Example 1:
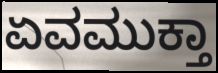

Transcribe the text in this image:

ಏವಮುಕ್ತಾ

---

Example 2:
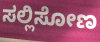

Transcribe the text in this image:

ಸಲ್ಲಿಸೋಣ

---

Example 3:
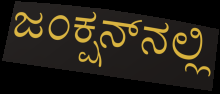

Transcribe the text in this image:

ಜಂಕ್ಷನ್‌ನಲ್ಲಿ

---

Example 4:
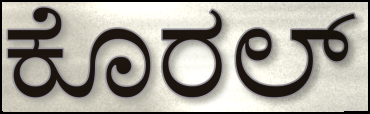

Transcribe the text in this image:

ಕೊರಲ್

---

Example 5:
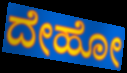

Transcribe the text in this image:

ದೇಹೋ